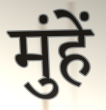
मुंहें